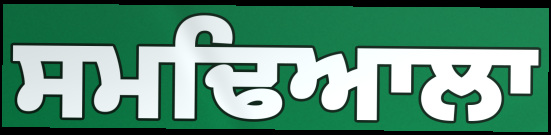
ਸਮਢਿਆਲਾ